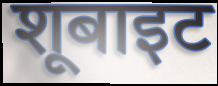
शूबाइट